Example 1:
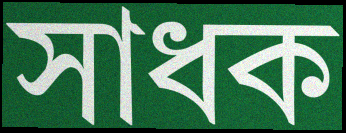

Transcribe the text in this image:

সাধক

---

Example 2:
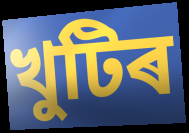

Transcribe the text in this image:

খুটিৰ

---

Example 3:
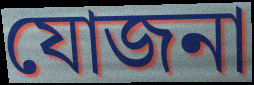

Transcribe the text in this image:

যোজনা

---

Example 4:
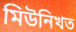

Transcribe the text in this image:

মিউনিখত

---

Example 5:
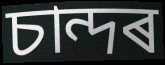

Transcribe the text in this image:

চান্দৰ